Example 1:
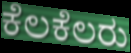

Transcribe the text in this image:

ಕೆಲಕೆಲರು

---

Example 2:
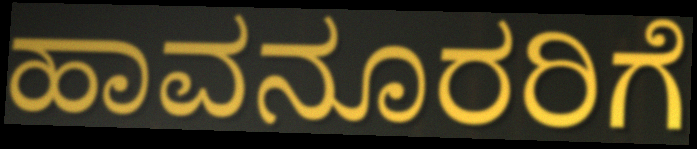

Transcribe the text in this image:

ಹಾವನೂರರಿಗೆ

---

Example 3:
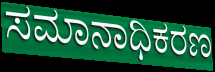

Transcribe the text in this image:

ಸಮಾನಾಧಿಕರಣ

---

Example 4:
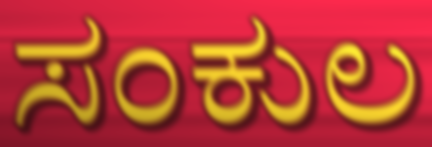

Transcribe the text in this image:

ಸಂಕುಲ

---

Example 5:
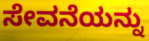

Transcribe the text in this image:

ಸೇವನೆಯನ್ನು